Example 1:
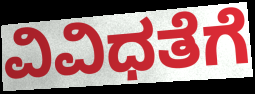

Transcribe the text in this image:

ವಿವಿಧತೆಗೆ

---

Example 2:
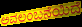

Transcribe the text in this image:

ಅವಲಂಬನೆಯಿದೆ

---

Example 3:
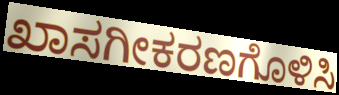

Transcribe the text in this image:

ಖಾಸಗೀಕರಣಗೊಳಿಸಿ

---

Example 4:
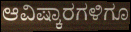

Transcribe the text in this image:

ಆವಿಷ್ಕಾರಗಳಿಗೂ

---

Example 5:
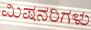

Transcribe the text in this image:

ಮಿಷನರಿಗಳು